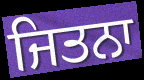
ਜਿਤਨਾ